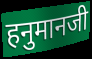
हनुमानजी